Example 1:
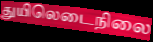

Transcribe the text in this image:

துயிலெடைநிலை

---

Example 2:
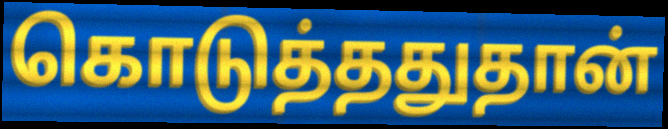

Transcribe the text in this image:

கொடுத்ததுதான்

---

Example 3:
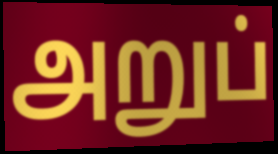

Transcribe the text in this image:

அறுப்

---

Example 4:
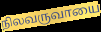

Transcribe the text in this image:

நிலவருவாயை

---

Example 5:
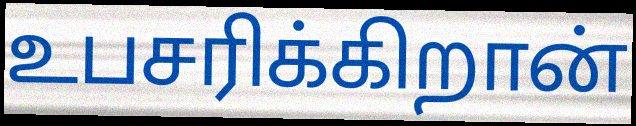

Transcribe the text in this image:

உபசரிக்கிறான்